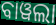
ବାୱଲା